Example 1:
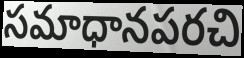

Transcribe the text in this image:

సమాధానపరచి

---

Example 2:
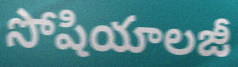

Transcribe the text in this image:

సోషియాలజీ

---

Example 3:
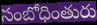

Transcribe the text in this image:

సంబోధింతురు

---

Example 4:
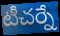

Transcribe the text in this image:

టీచర్నే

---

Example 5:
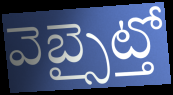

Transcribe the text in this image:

వెబ్సైట్తో